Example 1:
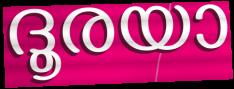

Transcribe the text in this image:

ദൂരയാ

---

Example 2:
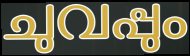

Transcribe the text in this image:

ചുവപ്പും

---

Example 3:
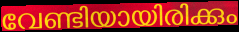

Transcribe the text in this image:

വേണ്ടിയായിരിക്കും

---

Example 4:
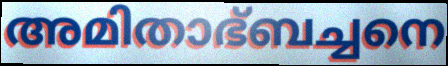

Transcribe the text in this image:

അമിതാഭ്ബച്ചനെ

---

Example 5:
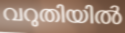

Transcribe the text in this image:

വറുതിയിൽ